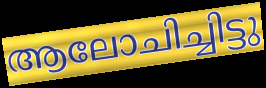
ആലോചിച്ചിട്ടു